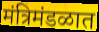
मंत्रिमंडळात